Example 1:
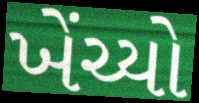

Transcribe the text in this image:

ખેંચ્યો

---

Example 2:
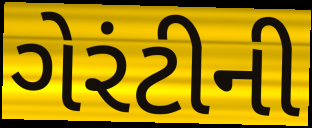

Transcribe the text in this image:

ગેરંટીની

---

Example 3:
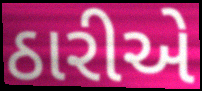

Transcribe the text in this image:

ઠારીએ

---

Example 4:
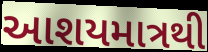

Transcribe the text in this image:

આશયમાત્રથી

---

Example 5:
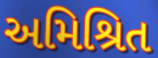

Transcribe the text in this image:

અમિશ્રિત